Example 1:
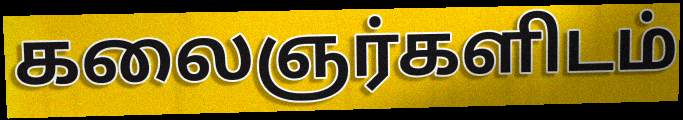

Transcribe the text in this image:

கலைஞர்களிடம்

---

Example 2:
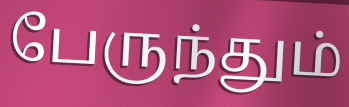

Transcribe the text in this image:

பேருந்தும்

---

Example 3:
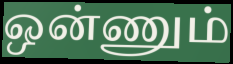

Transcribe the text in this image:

ஒன்ணும்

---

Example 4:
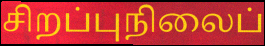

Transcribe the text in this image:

சிறப்புநிலைப்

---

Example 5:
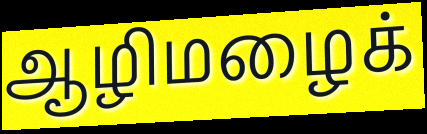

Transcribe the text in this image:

ஆழிமழைக்